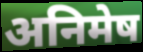
अनिमेष